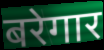
बरेगार